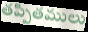
తప్పితములు